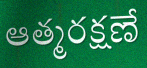
ఆత్మరక్షణే